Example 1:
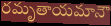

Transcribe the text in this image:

రమృతాయమానౌ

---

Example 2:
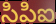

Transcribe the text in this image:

సిపిఐ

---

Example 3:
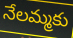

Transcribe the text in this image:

నేలమ్మకు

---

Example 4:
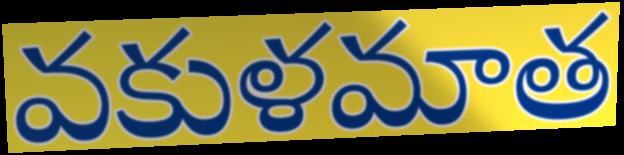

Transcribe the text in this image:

వకుళమాత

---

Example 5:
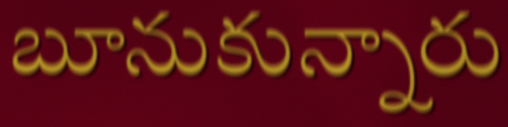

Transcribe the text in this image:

బూనుకున్నారు